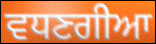
ਵਧਣਗੀਆ